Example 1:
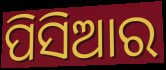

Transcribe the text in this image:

ପିସିଆର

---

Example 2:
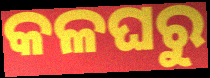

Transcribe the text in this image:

କଳଘରୁ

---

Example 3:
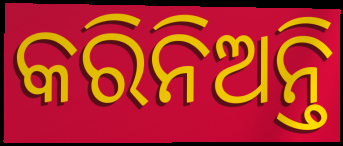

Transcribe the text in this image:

କରିନିଅନ୍ତି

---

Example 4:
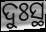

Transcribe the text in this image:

ଦୁଃସ୍ଥ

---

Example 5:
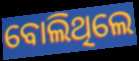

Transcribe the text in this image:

ବୋଲିଥିଲେ